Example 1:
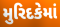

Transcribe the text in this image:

મુરિદકેમાં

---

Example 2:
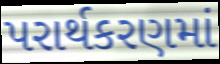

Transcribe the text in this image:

પરાર્થકરણમાં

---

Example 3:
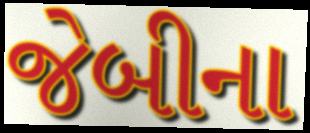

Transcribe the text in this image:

જેબીના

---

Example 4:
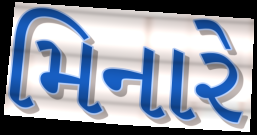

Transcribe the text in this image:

મિનારે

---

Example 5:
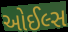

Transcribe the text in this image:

ઓઈલ્સ